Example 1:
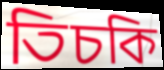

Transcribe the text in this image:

তিচকি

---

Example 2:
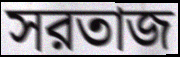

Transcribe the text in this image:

সরতাজ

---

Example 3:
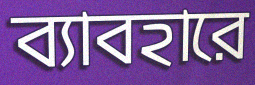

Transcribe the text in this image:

ব্যাবহারে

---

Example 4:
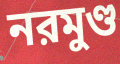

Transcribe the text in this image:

নরমুণ্ড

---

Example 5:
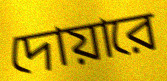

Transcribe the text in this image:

দোয়ারে